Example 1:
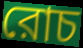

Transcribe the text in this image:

রোচ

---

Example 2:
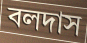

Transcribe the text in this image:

বলদাস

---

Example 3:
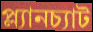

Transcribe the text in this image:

প্ল্যানচ্যাট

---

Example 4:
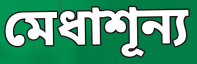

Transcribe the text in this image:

মেধাশূন্য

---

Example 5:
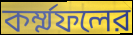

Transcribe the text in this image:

কর্ম্মফলের